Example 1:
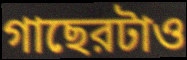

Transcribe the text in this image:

গাছেরটাও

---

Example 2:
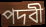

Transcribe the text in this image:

পদবী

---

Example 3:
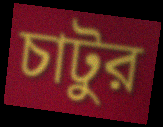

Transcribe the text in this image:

চাটুর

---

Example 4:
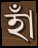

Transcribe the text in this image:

হাঁ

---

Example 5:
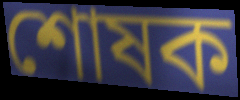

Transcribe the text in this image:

শোষক